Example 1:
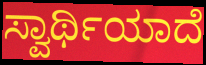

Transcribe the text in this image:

ಸ್ವಾರ್ಥಿಯಾದೆ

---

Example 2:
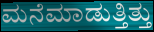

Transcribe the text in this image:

ಮನೆಮಾಡುತ್ತಿತ್ತು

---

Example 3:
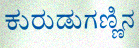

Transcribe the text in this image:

ಕುರುಡುಗಣ್ಣಿನ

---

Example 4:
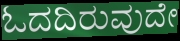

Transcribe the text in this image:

ಓದದಿರುವುದೇ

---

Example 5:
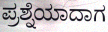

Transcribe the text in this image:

ಪ್ರಶ್ನೆಯಾದಾಗ